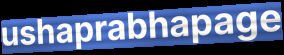
ushaprabhapage